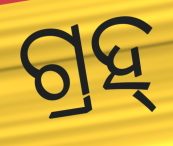
ଗ୍ରହ୍